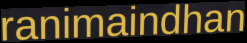
ranimaindhan